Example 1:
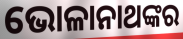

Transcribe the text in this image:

ଭୋଳାନାଥଙ୍କର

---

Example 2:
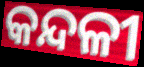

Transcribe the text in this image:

କନ୍ଦଳୀ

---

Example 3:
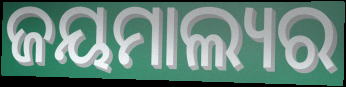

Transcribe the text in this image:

ଜୟମାଲ୍ୟର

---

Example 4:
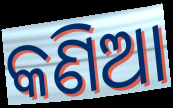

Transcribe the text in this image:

କଣିଆ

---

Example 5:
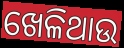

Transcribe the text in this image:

ଖେଳିଥାଉ